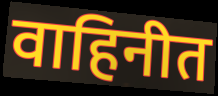
वाहिनीत